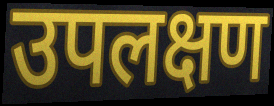
उपलक्षण